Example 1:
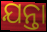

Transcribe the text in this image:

ଯନ୍ତା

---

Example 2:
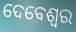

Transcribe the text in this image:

ଦେବେଶ୍ୱର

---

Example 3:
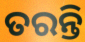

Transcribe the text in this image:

ତରନ୍ତି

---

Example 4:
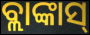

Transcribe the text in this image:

ବ୍ଲାଙ୍କାସ୍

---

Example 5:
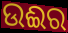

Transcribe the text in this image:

ଉଈର